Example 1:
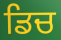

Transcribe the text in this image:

ਡਿਚ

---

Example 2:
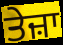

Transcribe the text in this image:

ਤੇਜ਼ਾ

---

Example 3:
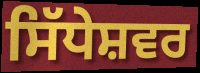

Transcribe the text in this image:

ਸਿੱਧੇਸ਼ਵਰ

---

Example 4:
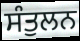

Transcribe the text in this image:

ਸੰਤੁਲਨ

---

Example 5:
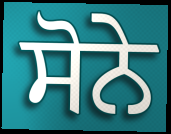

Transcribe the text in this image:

ਸੋਨੇ